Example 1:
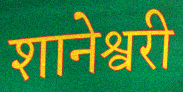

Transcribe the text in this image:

शानेश्वरी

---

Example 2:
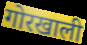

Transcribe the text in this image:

गोरखाली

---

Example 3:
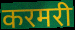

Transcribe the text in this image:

करमरी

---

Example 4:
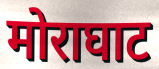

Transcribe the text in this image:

मोराघाट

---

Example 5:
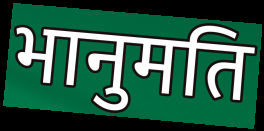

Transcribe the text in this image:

भानुमति